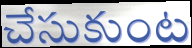
చేసుకుంట